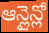
ఆన్లైన్లో